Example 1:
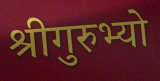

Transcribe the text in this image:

श्रीगुरुभ्यो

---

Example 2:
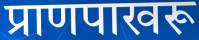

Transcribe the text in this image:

प्राणपाखरू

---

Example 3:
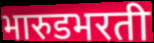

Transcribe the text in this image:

भारुडभरती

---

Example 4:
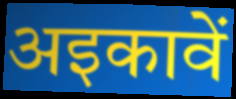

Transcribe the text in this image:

अइकावें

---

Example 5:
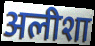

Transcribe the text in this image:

अलीशा